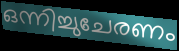
ഒന്നിച്ചുചേരണം